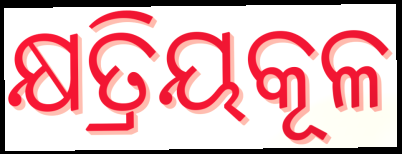
କ୍ଷତ୍ରିୟକୂଳ